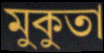
মুকুতা